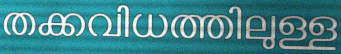
തക്കവിധത്തിലുള്ള